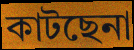
কাটছেনা